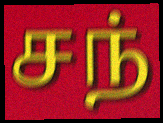
சந்